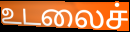
உடலைச்